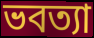
ভবত্যা